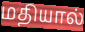
மதியால்